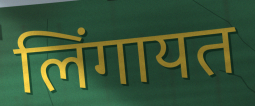
लिंगायत